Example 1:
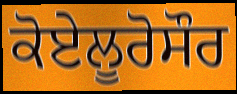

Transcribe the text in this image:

ਕੋਏਲੂਰੋਸੌਰ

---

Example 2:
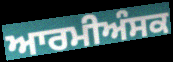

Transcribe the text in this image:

ਆਰਮੀਅੰਸਕ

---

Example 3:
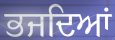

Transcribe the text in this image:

ਭਜਦਿਆਂ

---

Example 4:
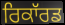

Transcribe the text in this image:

ਰਿਕਾੱਰਡ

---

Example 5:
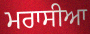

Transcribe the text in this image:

ਮਰਾਸੀਆ